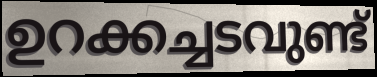
ഉറക്കച്ചടവുണ്ട്